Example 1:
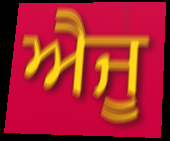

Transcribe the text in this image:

ਐਜੂ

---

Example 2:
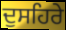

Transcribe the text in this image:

ਦੁਸਹਿਰੇ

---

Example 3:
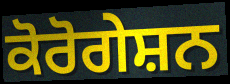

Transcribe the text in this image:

ਕੋਰੋਗੇਸ਼ਨ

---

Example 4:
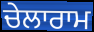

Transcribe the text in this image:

ਚੇਲਾਰਾਮ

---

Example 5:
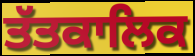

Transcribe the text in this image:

ਤੱਤਕਾਲਿਕ